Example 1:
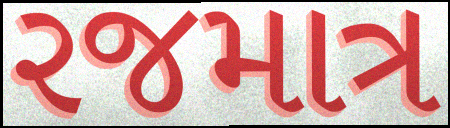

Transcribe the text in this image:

રજમાત્ર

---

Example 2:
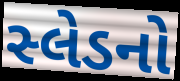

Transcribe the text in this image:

સ્લેડનો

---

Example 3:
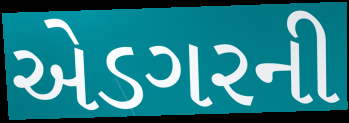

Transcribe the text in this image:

એડગરની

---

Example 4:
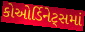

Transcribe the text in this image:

કોઓર્ડિનેટ્સમાં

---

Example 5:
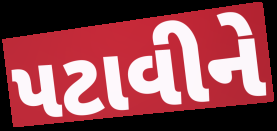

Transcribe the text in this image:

પટાવીને